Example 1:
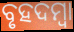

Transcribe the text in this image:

ବୃହଦମ୍ବା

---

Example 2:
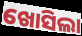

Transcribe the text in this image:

ଖୋସିଲା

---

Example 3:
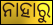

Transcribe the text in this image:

ନାହାରୁ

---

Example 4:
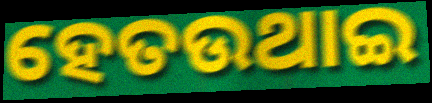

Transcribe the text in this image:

ହେତଉଥାଇ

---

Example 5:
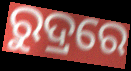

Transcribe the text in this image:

ରୁଦ୍ରରେ